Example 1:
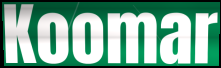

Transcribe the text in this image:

Koomar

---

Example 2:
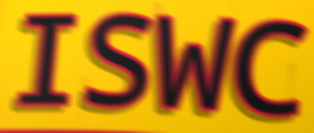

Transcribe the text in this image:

ISWC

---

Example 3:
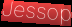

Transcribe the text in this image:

Jessop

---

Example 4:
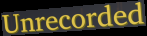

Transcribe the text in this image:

Unrecorded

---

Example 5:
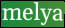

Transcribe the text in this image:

melya